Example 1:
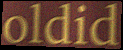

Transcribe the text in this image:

oldid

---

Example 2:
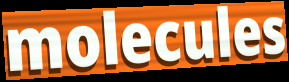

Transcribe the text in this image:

molecules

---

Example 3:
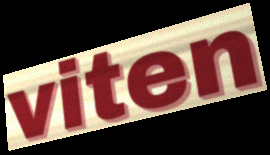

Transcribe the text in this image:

viten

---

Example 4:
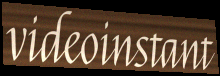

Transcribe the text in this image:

videoinstant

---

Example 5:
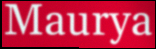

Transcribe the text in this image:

Maurya